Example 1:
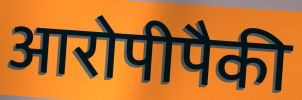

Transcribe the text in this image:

आरोपीपैकी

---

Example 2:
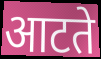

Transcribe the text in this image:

आटते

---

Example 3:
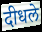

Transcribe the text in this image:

दीधले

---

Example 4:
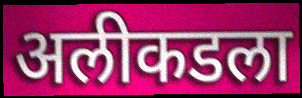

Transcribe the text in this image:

अलीकडला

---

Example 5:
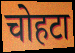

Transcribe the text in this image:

चोहटा